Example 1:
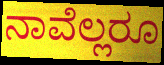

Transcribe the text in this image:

ನಾವೆಲ್ಲರೂ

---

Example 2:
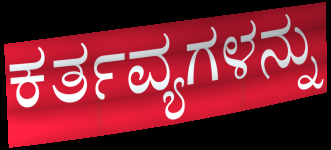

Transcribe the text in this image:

ಕರ್ತವ್ಯಗಳನ್ನು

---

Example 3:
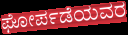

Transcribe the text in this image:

ಘೋರ್ಪಡೆಯವರ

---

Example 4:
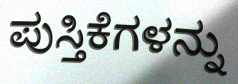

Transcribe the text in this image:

ಪುಸ್ತಿಕೆಗಳನ್ನು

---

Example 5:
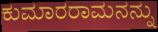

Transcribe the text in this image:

ಕುಮಾರರಾಮನನ್ನು